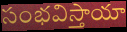
సంభవిస్తాయా